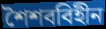
শৈশববিহীন